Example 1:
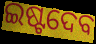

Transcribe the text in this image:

ଇଷ୍ଟଦେବ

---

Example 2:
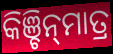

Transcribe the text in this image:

କିଞ୍ଚିନ୍‍ମାତ୍ର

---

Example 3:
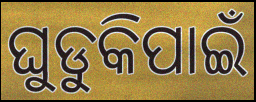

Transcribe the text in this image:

ଘୁଡୁକିପାଇଁ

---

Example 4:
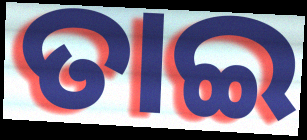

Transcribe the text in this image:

ତାଇ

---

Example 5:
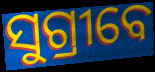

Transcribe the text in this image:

ସୁଗ୍ରୀବେ